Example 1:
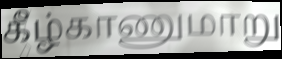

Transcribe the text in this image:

கீழ்காணுமாறு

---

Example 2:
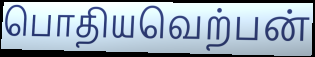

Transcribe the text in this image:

பொதியவெற்பன்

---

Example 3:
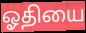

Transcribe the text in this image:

ஓதியை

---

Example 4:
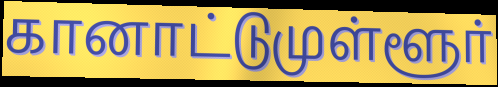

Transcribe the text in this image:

கானாட்டுமுள்ளூர்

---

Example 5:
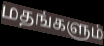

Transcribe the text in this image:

மதங்களும்